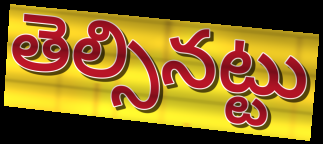
తెల్సినట్టు